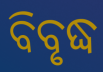
ବିବୃଦ୍ଧ